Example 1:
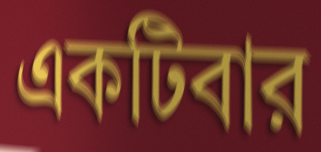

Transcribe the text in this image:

একটিবার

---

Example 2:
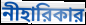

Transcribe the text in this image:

নীহারিকার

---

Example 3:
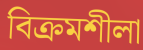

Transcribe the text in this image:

বিক্রমশীলা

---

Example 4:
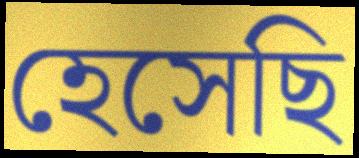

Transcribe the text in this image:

হেসেছি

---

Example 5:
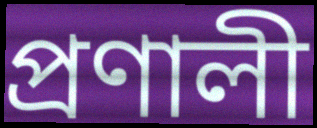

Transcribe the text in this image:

প্রণালী